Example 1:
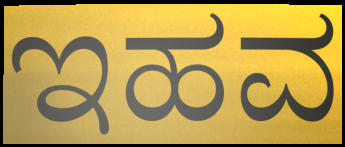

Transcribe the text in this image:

ಇಹವ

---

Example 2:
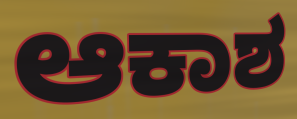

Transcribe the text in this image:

ಆಕಾಶ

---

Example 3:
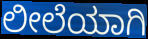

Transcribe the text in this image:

ಲೀಲೆಯಾಗಿ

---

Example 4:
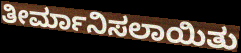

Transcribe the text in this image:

ತೀರ್ಮಾನಿಸಲಾಯಿತು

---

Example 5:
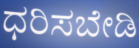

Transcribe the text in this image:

ಧರಿಸಬೇಡಿ